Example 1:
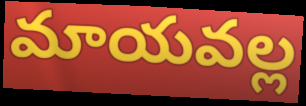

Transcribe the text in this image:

మాయవల్ల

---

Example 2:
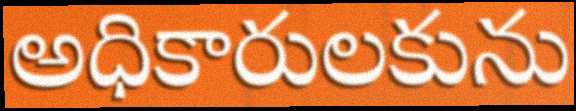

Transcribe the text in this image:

అధికారులకును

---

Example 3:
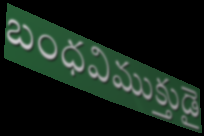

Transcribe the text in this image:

బంధవిముక్తుడై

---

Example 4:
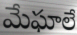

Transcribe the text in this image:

మేఘాలే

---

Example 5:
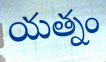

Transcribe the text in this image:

యత్నం